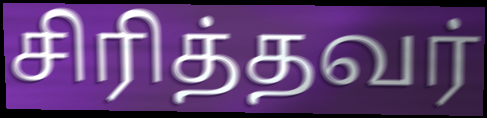
சிரித்தவர்